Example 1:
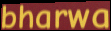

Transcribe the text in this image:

bharwa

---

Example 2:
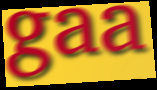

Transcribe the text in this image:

gaa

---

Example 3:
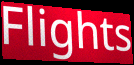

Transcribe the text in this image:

Flights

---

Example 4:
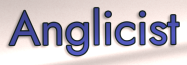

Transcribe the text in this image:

Anglicist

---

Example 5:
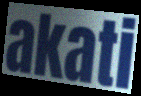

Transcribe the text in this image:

akati